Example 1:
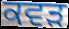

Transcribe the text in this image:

ਕਵੜ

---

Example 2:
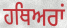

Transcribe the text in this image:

ਹਥਿਅਰਾਂ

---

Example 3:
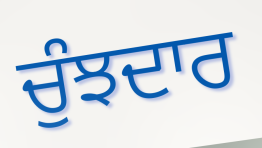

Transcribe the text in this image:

ਚੁੰਝਦਾਰ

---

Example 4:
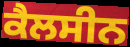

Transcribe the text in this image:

ਕੈਲਸੀਨ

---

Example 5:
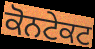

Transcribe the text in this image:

ਕੋਨਟੇਕਟ